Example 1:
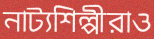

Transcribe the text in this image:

নাট্যশিল্পীরাও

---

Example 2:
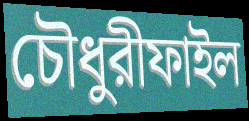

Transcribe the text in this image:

চৌধুরীফাইল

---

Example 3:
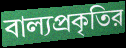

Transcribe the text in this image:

বাল্যপ্রকৃতির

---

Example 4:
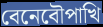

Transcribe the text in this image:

বেনেবৌপাখি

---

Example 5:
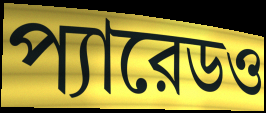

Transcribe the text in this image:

প্যারেডও